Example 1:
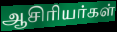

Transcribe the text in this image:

ஆசிரியர்கள்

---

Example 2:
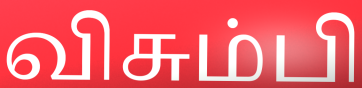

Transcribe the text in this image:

விசும்பி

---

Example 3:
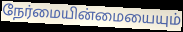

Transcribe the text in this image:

நேர்மையின்மையையும்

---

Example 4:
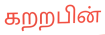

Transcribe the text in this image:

கறறபின்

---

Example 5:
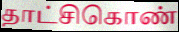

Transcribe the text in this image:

தாட்சிகொண்